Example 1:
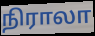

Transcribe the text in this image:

நிராலா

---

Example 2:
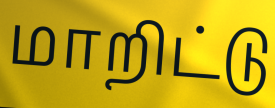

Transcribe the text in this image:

மாறிட்டு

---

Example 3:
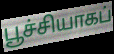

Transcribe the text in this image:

பூச்சியாகப்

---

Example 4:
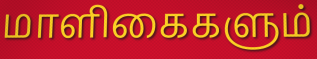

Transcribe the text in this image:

மாளிகைகளும்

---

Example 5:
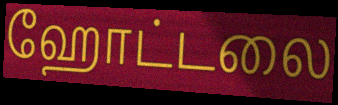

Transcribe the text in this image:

ஹோட்டலை